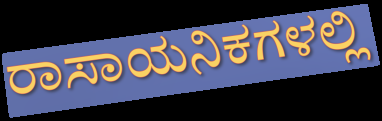
ರಾಸಾಯನಿಕಗಳಲ್ಲಿ